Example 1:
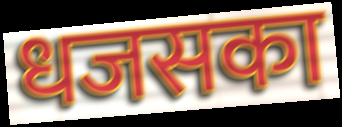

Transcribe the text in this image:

धजसका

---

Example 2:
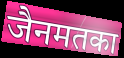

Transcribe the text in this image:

जैनमतका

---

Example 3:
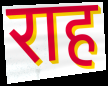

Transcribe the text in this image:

राह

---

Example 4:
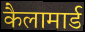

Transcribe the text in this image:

कैलामार्ड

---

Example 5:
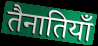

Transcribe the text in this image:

तैनातियाँ